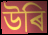
উৰি